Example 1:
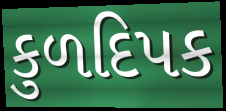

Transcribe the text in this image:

કુળદિપક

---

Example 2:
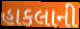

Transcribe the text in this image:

હાકલાની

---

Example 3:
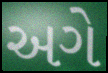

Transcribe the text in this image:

અગે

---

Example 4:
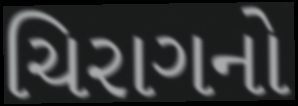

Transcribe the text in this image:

ચિરાગનો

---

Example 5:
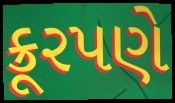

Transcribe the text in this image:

ક્રૂરપણે